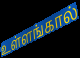
உள்ளங்கால்